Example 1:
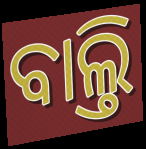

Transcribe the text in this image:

ବାଲ୍ତି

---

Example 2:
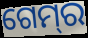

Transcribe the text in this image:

ଗେମ୍‌ର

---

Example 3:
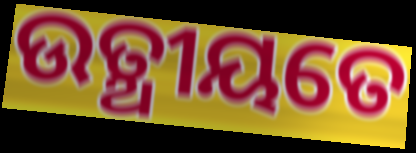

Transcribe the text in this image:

ଉତ୍ଥୀୟତେ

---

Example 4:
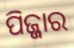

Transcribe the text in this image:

ପିଜ୍ଜାର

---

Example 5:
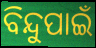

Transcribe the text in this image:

ବିନ୍ଦୁପାଇଁ